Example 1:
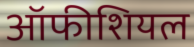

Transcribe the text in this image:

ऑफीशियल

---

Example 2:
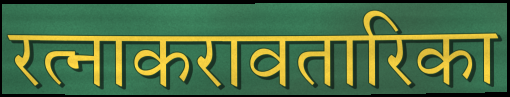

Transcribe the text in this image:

रत्नाकरावतारिका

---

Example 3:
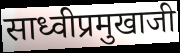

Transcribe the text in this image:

साध्वीप्रमुखाजी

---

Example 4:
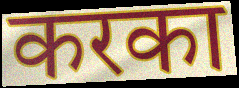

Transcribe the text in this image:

करका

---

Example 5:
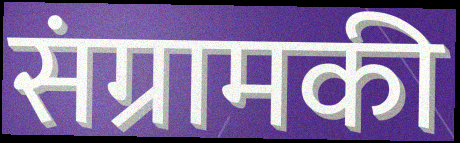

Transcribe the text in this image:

संग्रामकी